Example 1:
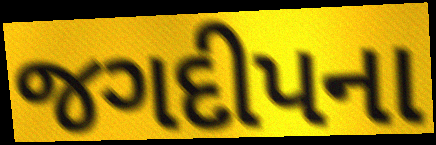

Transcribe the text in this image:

જગદીપના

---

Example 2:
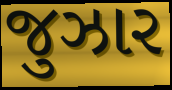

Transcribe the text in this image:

જુઝાર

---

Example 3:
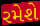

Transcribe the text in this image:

રમેશે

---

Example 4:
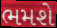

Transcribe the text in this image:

ભમશે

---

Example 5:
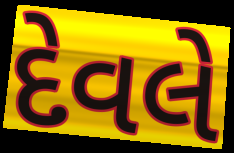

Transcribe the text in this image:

દેવલે